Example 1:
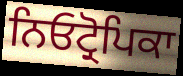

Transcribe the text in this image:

ਨਿਓਟ੍ਰੋਪਿਕਾ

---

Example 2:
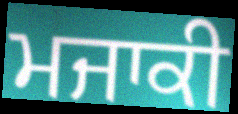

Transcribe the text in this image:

ਮਜਾਕੀ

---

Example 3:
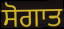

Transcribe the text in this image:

ਸੋਗਾਤ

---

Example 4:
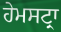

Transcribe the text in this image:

ਹੇਮਸਟ੍ਰਾ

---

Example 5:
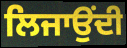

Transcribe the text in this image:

ਲਿਜਾਉਂਦੀ